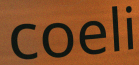
coeli